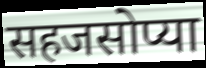
सहजसोप्या